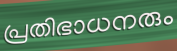
പ്രതിഭാധനരും